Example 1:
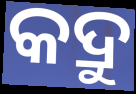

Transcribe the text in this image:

କଦ୍ରୁ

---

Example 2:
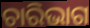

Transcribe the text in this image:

ଚାରିଭାଗ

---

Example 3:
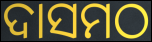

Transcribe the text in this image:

ଦାସମଠ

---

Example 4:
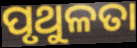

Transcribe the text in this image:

ପୃଥୁଳତା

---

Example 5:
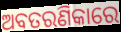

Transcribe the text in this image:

ଅବତରଣିକାରେ